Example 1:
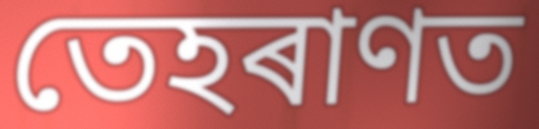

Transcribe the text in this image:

তেহৰাণত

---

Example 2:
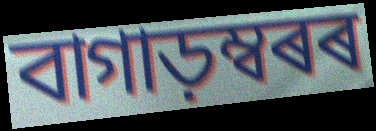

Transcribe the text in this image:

বাগাড়ম্বৰৰ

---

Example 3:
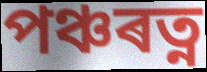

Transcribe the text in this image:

পঞ্চৰত্ন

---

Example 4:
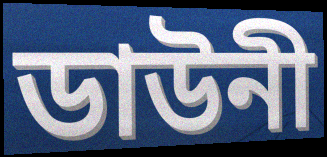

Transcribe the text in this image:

ডাউনী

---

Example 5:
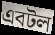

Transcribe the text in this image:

এবটল